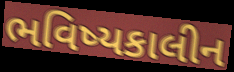
ભવિષ્યકાલીન